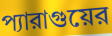
প্যারাগুয়ের